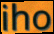
iho